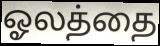
ஓலத்தை